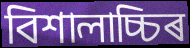
বিশালাচ্চিৰ